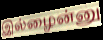
இல்ழைன்னு